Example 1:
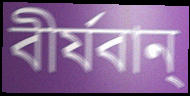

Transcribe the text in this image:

বীর্যবান্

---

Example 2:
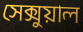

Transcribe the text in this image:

সেক্সুয়াল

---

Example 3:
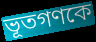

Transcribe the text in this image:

ভূতগণকে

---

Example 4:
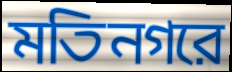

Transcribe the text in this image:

মতিনগরে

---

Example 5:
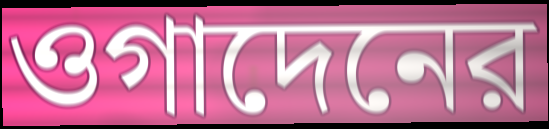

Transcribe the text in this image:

ওগাদেনের